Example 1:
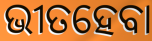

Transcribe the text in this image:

ଭୀତହେବା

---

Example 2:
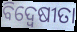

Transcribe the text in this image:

ବିଦ୍ଵେଷୀତା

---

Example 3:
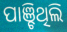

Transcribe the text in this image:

ପାଞ୍ଚିଥିଲି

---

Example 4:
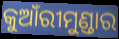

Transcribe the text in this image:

କୁଆଁରୀମୁଣ୍ଡାର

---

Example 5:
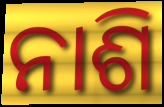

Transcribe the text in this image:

ନାଶି